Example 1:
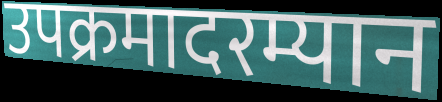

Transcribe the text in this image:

उपक्रमादरम्यान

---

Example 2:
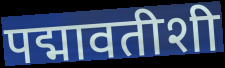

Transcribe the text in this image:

पद्मावतीशी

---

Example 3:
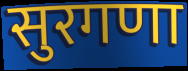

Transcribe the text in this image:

सुरगणा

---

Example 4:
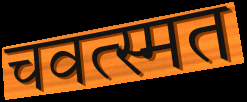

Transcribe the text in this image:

चवत्स्मत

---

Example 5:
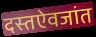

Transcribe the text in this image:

दस्तऐवजांत